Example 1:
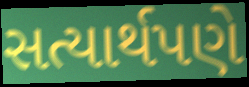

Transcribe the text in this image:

સત્યાર્થપણે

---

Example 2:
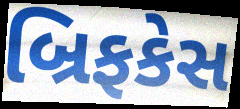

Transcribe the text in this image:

બ્રિફકેસ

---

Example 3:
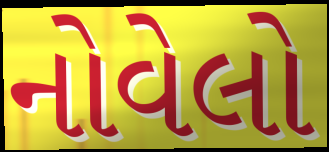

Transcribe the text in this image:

નોવેલો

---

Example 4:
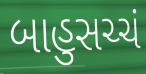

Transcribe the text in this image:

બાહુસચ્ચં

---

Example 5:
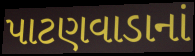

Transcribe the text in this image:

પાટણવાડાનાં